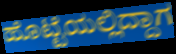
ಹೊಟ್ಟೆಯಲ್ಲಿದ್ದಾಗ